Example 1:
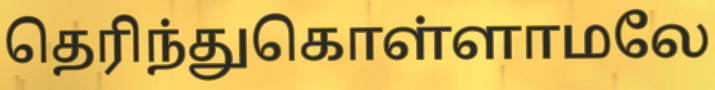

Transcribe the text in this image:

தெரிந்துகொள்ளாமலே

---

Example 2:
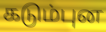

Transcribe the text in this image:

கடும்புன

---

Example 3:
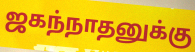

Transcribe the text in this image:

ஜகந்நாதனுக்கு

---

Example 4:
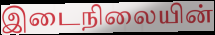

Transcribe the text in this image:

இடைநிலையின்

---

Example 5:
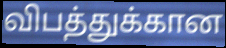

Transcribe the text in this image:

விபத்துக்கான